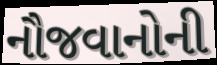
નૌજવાનોની